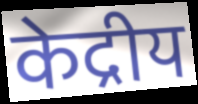
केद्रीय